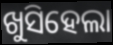
ଖୁସିହେଲା